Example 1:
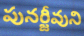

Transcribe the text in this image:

పునర్జీవుని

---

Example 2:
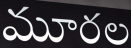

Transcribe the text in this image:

మూరల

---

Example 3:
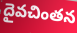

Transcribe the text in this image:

దైవచింతన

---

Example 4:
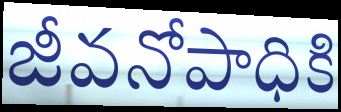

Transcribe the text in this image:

జీవనోపాధికి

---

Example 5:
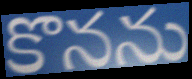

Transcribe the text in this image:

కొనను